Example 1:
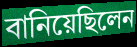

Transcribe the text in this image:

বানিয়েছিলেন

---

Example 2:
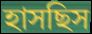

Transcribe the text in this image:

হাসছিস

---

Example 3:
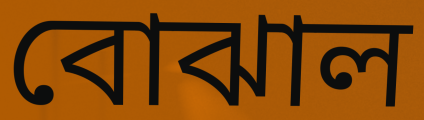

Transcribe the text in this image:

বোঝাল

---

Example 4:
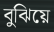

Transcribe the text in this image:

বুঝিয়ে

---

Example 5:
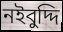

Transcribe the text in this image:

নইবুদ্দি